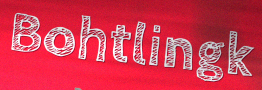
Bohtlingk